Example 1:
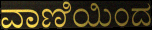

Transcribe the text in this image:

ವಾಣಿಯಿಂದ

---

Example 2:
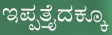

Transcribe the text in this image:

ಇಪ್ಪತ್ತೈದಕ್ಕೂ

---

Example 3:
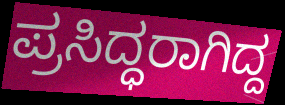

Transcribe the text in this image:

ಪ್ರಸಿದ್ಧರಾಗಿದ್ದ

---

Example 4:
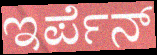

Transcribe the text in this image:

ಇರ್ಪೆನ್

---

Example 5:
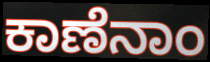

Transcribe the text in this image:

ಕಾಣೆನಾಂ